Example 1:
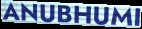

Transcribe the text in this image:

ANUBHUMI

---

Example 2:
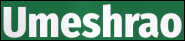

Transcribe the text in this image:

Umeshrao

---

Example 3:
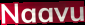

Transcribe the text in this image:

Naavu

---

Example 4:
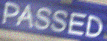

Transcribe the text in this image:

PASSED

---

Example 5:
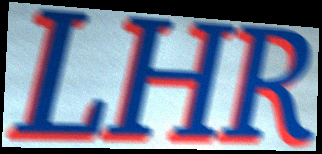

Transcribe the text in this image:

LHR